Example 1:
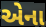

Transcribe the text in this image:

એના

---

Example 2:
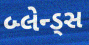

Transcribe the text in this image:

બ્લેન્ડ્સ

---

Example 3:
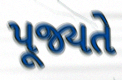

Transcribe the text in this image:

પૂજ્યતે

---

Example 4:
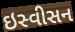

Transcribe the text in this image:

ઇસ્વીસન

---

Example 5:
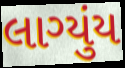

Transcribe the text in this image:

લાગ્યુંય